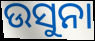
ଉସୁନା